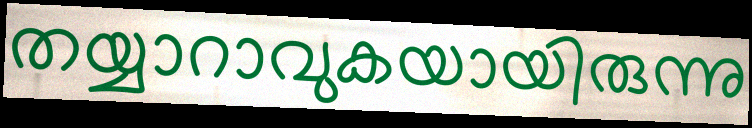
തയ്യാറാവുകയായിരുന്നു